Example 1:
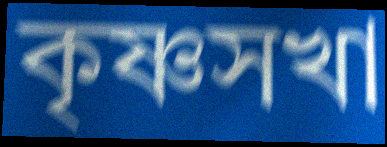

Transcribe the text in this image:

কৃষ্ণসখা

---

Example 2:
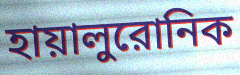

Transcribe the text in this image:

হায়ালুরোনিক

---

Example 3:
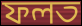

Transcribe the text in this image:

ফলত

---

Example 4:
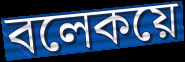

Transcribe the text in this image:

বলেকয়ে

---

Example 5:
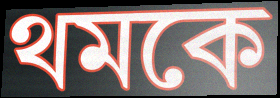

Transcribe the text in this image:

থমকে